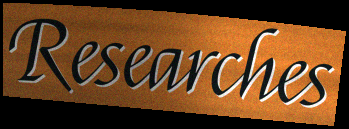
Researches